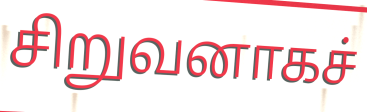
சிறுவனாகச்